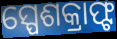
ସ୍ପେଶକ୍ରାଫ୍ଟ